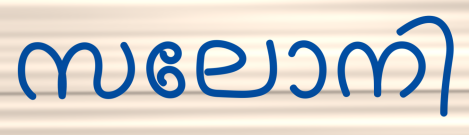
സലോനി